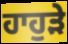
ਹਾਹੁੜੇ